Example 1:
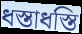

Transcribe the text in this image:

ধস্তাধস্তি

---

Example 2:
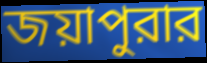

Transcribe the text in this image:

জয়াপুরার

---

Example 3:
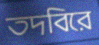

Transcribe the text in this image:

তদবিরে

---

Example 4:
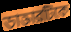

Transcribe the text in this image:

ডাক্তারটিকে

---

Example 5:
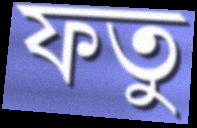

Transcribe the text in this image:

ফতু